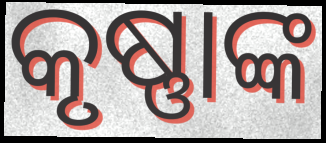
କୃଷ୍ଣାଙ୍କ